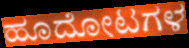
ಹೂದೋಟಗಳ